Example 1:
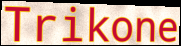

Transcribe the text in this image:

Trikone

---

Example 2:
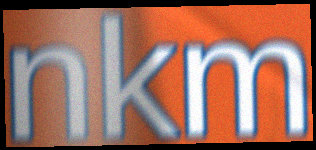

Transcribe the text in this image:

nkm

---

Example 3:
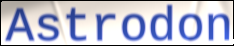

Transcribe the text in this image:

Astrodon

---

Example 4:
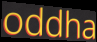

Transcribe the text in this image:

oddha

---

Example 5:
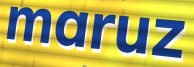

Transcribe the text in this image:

maruz